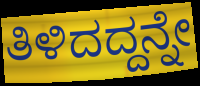
ತಿಳಿದದ್ದನ್ನೇ